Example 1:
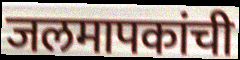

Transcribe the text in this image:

जलमापकांची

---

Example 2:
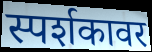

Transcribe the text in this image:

स्पर्शकावर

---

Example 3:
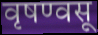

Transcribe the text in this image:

वृषण्वसू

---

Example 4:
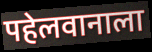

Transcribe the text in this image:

पहेलवानाला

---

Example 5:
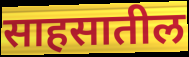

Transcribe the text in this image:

साहसातील